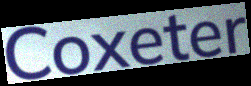
Coxeter